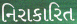
નિરાકારિત